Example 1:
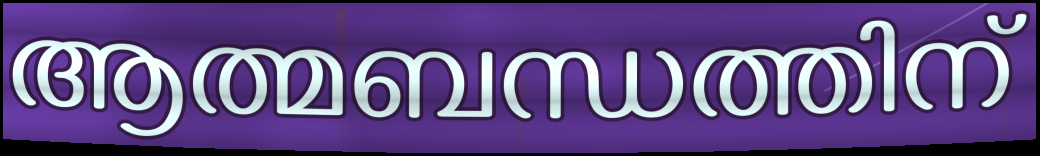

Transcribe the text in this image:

ആത്മബന്ധത്തിന്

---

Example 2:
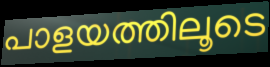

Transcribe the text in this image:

പാളയത്തിലൂടെ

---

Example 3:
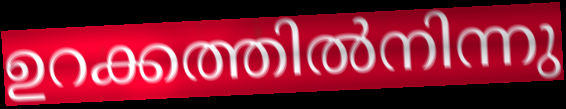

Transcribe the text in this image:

ഉറക്കത്തിൽനിന്നു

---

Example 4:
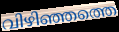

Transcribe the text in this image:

വിഴിഞ്ഞത്തെ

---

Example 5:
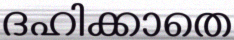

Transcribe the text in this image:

ദഹിക്കാതെ